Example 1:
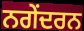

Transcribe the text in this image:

ਨਗੇਂਦਰਨ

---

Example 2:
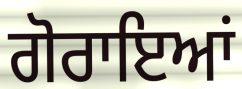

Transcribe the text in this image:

ਗੋਰਾਇਆਂ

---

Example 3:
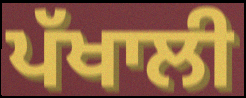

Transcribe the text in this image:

ਪੱਖਾਲੀ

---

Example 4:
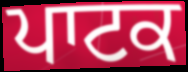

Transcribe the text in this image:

ਪਾਟਕ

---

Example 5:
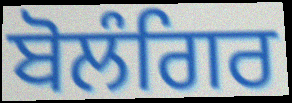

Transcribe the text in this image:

ਬੋਲੰਗਿਰ